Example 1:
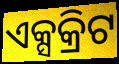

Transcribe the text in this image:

ଏକ୍ସକ୍ରିଟ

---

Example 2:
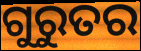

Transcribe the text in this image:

ଗୁରୁତର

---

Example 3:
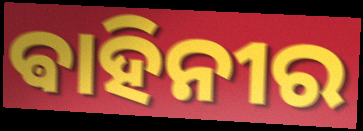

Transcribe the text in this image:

ଵାହିନୀର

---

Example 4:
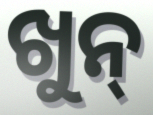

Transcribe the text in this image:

ଖୁନ୍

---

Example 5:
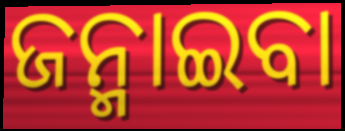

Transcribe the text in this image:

ଜନ୍ମାଇବା